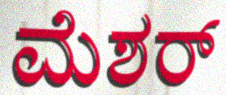
ಮೆಶರ್